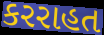
કરરાહત